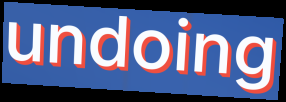
undoing